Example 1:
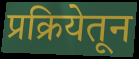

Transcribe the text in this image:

प्रक्रियेतून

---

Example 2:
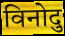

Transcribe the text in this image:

विनोदु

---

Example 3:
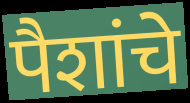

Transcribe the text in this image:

पैशांचे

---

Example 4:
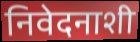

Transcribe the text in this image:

निवेदनाशी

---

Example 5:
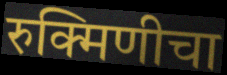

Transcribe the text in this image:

रुक्मिणीचा